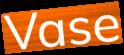
Vase